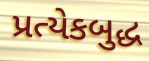
પ્રત્યેકબુદ્ધ